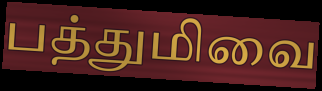
பத்துமிவை